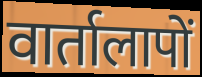
वार्तालापों